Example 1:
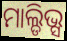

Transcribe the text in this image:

ମାଲ୍ଡିଭ୍ସ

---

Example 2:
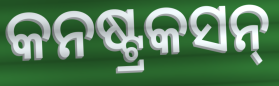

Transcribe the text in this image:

କନଷ୍ଟ୍ରକସନ୍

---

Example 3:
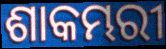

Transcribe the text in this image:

ଶାକମ୍ଭରୀ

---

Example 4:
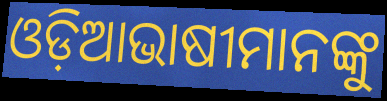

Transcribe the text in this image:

ଓଡ଼ିଆଭାଷୀମାନଙ୍କୁ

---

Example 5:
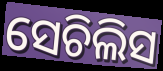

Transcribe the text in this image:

ସେଚିଲିସ